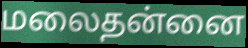
மலைதன்னை